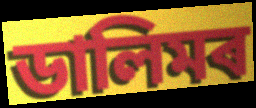
ডালিমৰ